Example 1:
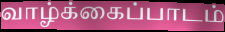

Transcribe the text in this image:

வாழ்க்கைப்பாடம்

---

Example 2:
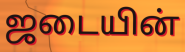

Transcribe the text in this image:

ஜடையின்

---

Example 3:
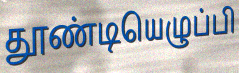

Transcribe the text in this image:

தூண்டியெழுப்பி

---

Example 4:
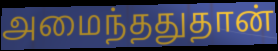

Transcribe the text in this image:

அமைந்ததுதான்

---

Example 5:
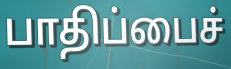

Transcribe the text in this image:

பாதிப்பைச்